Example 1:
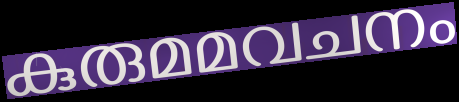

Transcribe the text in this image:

കുരുമമവചനം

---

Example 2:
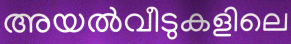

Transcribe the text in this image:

അയൽവീടുകളിലെ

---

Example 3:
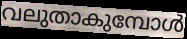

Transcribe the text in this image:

വലുതാകുമ്പോൾ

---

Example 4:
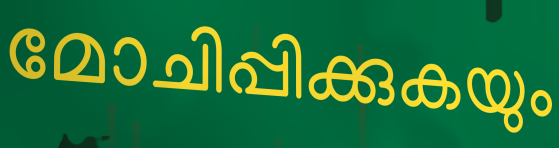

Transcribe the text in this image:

മോചിപ്പിക്കുകയും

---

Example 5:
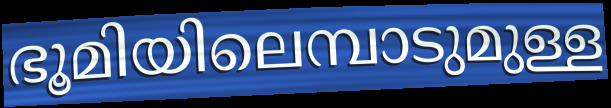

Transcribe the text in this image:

ഭൂമിയിലെമ്പാടുമുള്ള